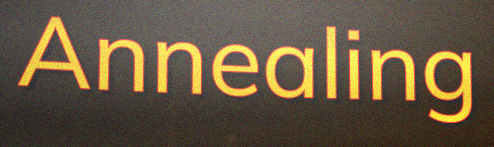
Annealing